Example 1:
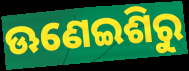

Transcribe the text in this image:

ଊଣେଇଶିରୁ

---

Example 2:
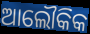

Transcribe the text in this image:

ଆଲୌକିକ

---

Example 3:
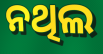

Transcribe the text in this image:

ନଥିଲ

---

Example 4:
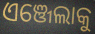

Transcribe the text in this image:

ଏଞ୍ଜେଲାକୁ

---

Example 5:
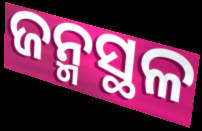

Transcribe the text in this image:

ଜନ୍ମସ୍ଥଳ